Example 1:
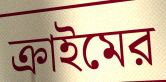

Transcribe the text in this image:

ক্রাইমের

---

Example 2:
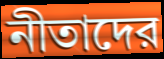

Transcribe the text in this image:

নীতাদের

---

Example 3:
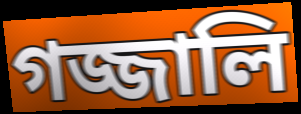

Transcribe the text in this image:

গজ্জালি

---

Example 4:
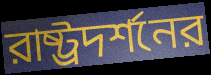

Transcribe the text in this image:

রাষ্ট্রদর্শনের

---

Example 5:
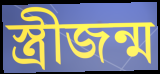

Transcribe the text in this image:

স্ত্রীজন্ম